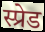
स्‍प्रेड